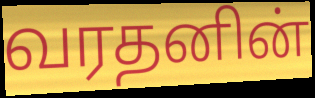
வரதனின்